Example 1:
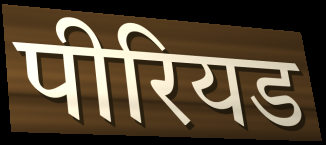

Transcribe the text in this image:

पीरियड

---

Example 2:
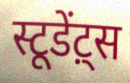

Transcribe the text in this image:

स्टूडेंट़्स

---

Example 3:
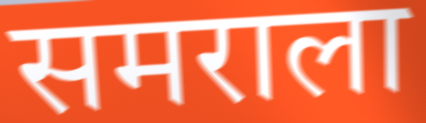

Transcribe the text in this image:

समराला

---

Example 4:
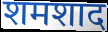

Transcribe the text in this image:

शमशाद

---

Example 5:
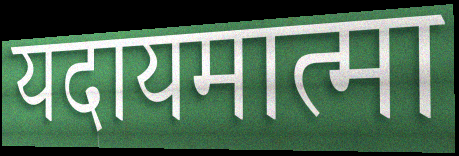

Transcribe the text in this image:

यदायमात्मा